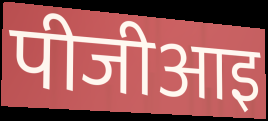
पीजीआइ